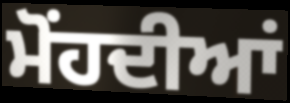
ਮੋਂਹਦੀਆਂ